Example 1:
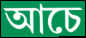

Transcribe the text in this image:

আচে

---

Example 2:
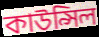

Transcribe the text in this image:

কাউন্সিল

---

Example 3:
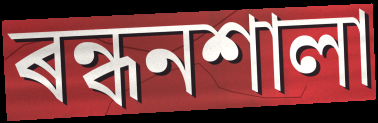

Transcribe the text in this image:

ৰন্ধনশালা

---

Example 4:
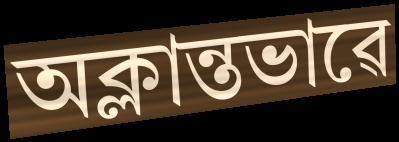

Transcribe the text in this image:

অক্লান্তভাৱে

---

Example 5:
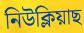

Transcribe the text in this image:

নিউক্লিয়াছ